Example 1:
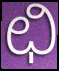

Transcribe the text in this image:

ಛಿ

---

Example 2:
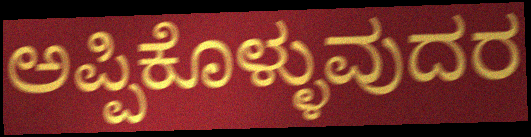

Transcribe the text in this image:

ಅಪ್ಪಿಕೊಳ್ಳುವುದರ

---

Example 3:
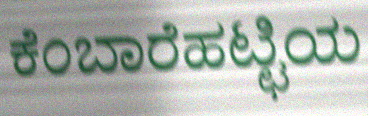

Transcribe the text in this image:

ಕೆಂಬಾರೆಹಟ್ಟಿಯ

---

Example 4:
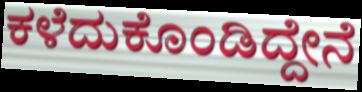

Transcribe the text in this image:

ಕಳೆದುಕೊಂಡಿದ್ದೇನೆ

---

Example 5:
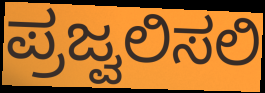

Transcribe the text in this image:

ಪ್ರಜ್ವಲಿಸಲಿ